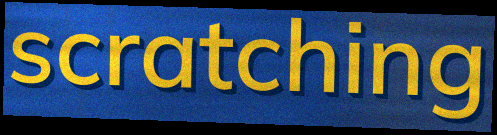
scratching